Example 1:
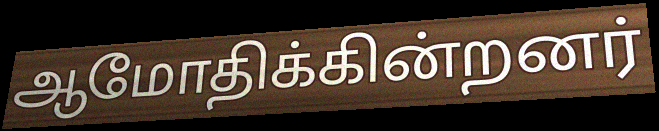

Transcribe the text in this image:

ஆமோதிக்கின்றனர்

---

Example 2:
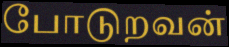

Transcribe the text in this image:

போடுறவன்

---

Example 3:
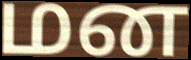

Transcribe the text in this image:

மன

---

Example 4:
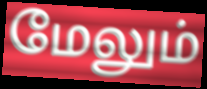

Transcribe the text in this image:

மேலும்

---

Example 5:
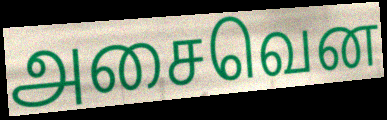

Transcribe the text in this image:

அசைவென